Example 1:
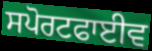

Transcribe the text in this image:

ਸਪੋਰਟਫਾਈਵ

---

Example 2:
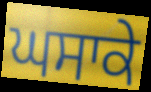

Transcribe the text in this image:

ਘਸਾਕੇ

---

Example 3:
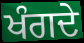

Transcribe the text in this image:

ਖੰਗਦੇ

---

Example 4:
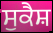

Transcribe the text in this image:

ਸੁਕੈਸ਼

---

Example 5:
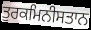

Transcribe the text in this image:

ਤੁਰਕਮਿਨੀਸਤਾਨ